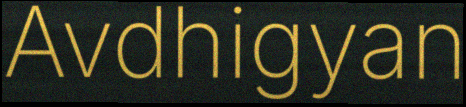
Avdhigyan